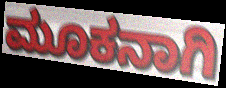
ಮೂಕನಾಗಿ